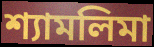
শ্যামলিমা